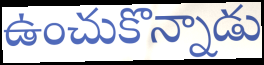
ఉంచుకొన్నాడు